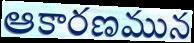
ఆకారణమున